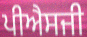
ਪੀਐਸਜੀ